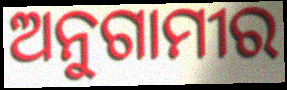
ଅନୁଗାମୀର